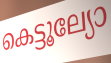
കെട്ടൂല്യോ